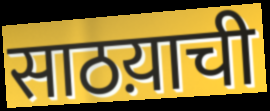
साठय़ाची